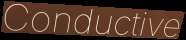
Conductive